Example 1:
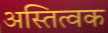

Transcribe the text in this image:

अस्तित्वक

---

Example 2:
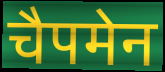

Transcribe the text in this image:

चैपमेन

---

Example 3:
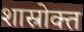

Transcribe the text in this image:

शास्रोक्त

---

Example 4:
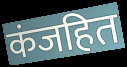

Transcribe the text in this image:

कंजहित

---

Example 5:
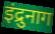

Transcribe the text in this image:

इंद्रुनाग